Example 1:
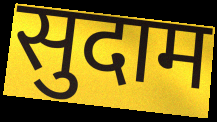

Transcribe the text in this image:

सुदाम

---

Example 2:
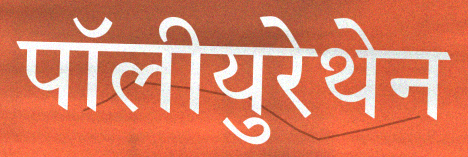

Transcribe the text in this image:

पॉलीयुरेथेन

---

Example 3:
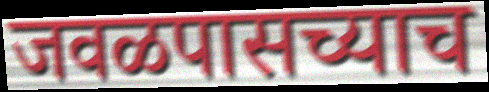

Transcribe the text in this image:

जवळपासच्याच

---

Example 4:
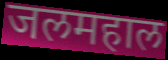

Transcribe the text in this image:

जलमहाल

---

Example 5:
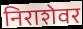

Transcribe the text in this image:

निराशेवर